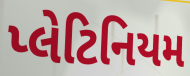
પ્લેટિનિયમ